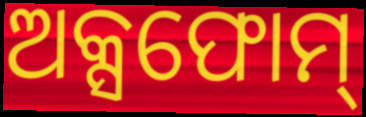
ଅକ୍ସଫୋମ୍